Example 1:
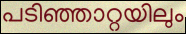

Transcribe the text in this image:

പടിഞ്ഞാറ്റയിലും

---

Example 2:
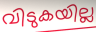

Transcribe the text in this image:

വിടുകയില്ല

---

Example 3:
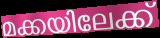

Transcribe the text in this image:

മക്കയിലേക്ക്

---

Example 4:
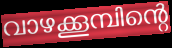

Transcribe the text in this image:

വാഴക്കൂമ്പിന്റെ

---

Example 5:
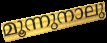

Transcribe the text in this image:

മൂന്നുനാലു